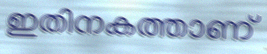
ഇതിനകത്താണ്